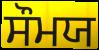
ਸੌਮਯ